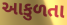
આકુળતા